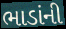
ભાડાંની